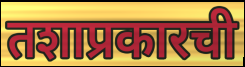
तशाप्रकारची